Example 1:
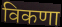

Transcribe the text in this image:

विकणा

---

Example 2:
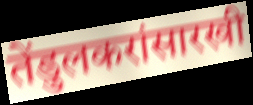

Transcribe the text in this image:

तेंडुलकरांसारखी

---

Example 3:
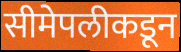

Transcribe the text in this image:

सीमेपलीकडून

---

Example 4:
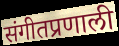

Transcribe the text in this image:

संगीतप्रणाली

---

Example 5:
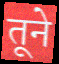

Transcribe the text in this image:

तूने